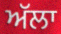
ਅੱਲਾ